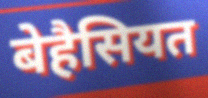
बेहैसियत